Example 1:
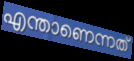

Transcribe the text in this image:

എന്താണെന്നത്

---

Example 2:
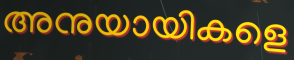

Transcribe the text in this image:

അനുയായികളെ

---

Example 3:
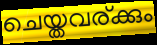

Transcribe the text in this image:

ചെയ്തവര്ക്കും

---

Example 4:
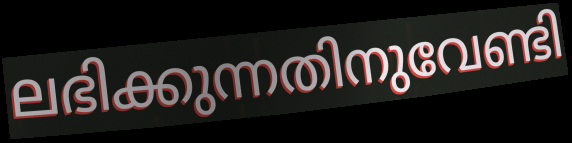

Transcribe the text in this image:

ലഭിക്കുന്നതിനുവേണ്ടി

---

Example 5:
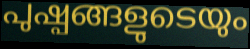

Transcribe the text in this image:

പുഷ്പങ്ങളുടെയും